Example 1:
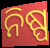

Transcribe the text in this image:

ନିଷ୍ପ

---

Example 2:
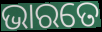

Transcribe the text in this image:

ଭାରତେ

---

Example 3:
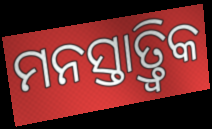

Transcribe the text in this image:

ମନସ୍ତାତ୍ତ୍ଵିକ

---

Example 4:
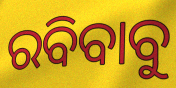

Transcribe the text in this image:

ରବିବାବୁ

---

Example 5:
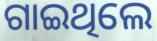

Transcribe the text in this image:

ଗାଇଥିଲେ